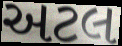
અટલ